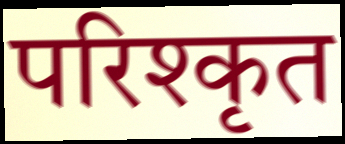
परिश्कृत